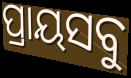
ପ୍ରାୟସବୁ